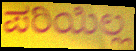
ಪರಿಯಿಲ್ಲ